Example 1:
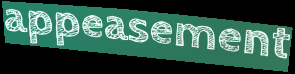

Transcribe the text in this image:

appeasement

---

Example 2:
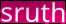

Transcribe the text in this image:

sruth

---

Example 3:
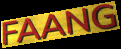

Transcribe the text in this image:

FAANG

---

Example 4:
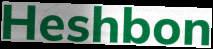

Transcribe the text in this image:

Heshbon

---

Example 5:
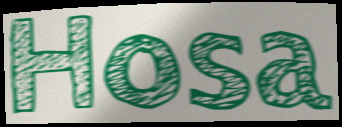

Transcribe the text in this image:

Hosa